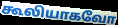
கூலியாகவோ